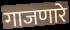
गाजणारे